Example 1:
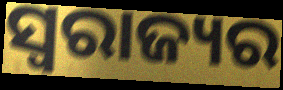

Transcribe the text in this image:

ସ୍ବରାଜ୍ୟର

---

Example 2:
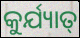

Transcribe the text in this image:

କୁର୍ଯ୍ୟାତ୍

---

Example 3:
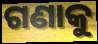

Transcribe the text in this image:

ଗଣାକୁ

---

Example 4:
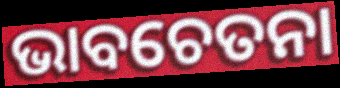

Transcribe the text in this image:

ଭାବଚେତନା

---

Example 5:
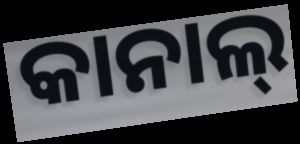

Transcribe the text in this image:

କାନାଲ୍